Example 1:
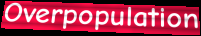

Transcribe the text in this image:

Overpopulation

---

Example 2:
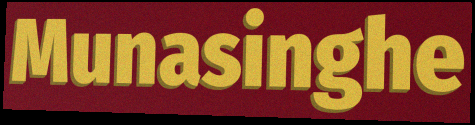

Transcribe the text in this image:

Munasinghe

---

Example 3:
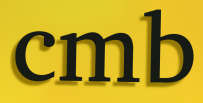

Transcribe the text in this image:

cmb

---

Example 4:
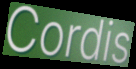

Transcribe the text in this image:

Cordis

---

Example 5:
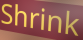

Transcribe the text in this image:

Shrink